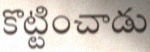
కొట్టించాడు